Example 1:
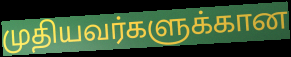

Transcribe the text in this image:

முதியவர்களுக்கான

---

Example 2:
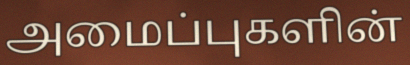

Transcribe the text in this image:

அமைப்புகளின்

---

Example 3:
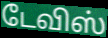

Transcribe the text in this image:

டேவிஸ்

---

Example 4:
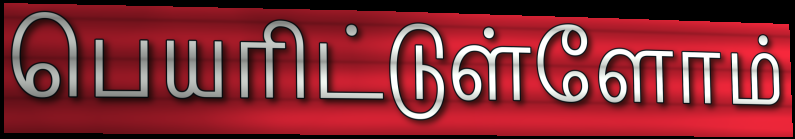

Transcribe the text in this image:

பெயரிட்டுள்ளோம்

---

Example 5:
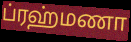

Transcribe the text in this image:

ப்ரஹ்மணா